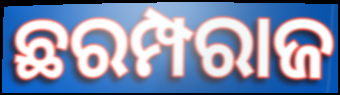
ଛରମ୍ପରାଜ